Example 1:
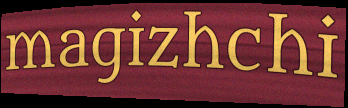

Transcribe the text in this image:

magizhchi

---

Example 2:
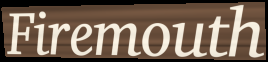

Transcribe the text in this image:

Firemouth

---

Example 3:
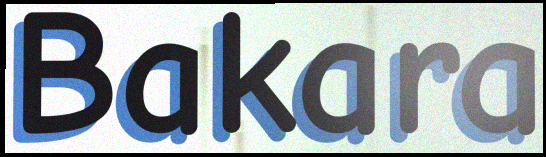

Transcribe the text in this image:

Bakara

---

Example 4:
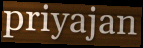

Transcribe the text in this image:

priyajan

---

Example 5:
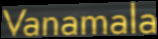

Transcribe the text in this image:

Vanamala